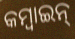
କମ୍ବାଇନ୍